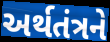
અર્થતંત્રને